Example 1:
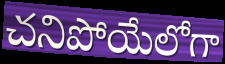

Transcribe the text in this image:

చనిపోయేలోగా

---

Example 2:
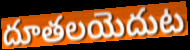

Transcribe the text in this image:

దూతలయెదుట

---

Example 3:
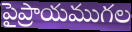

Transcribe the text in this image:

పైప్రాయముగల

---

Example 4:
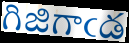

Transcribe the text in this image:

గిజిగాఁడ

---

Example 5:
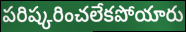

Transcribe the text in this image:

పరిష్కరించలేకపోయారు